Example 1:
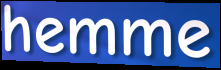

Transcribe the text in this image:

hemme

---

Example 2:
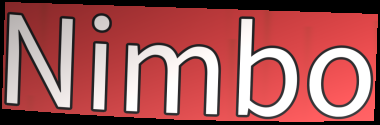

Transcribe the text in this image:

Nimbo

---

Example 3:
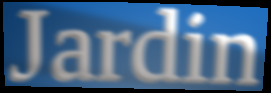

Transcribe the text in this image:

Jardin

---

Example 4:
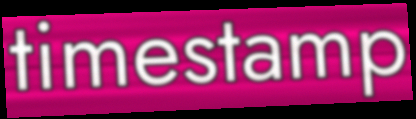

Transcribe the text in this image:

timestamp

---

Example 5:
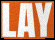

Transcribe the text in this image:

LAY